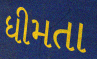
ધીમતા